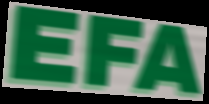
EFA